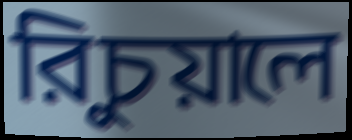
রিচুয়ালে